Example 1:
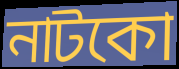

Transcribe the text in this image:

নাটকো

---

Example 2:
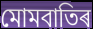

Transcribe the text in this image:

মোমবাতিৰ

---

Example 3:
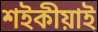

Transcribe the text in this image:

শইকীয়াই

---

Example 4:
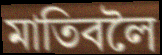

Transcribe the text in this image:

মাতিবলৈ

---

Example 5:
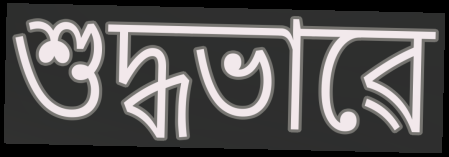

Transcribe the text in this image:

শুদ্ধভাৱে